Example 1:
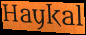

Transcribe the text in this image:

Haykal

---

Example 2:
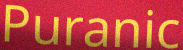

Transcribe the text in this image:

Puranic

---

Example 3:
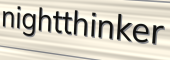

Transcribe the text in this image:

nightthinker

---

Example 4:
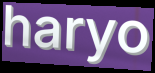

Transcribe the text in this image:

haryo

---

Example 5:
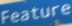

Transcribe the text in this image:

Feature